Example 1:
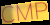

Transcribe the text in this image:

CMP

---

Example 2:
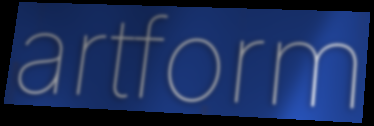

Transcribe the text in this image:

artform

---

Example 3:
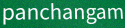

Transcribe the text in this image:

panchangam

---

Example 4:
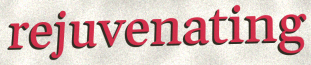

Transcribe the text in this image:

rejuvenating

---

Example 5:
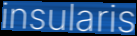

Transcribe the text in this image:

insularis